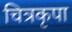
चित्रकृपा